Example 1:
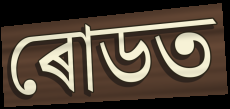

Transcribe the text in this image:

ৰোডত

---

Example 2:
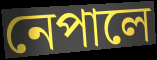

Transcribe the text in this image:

নেপালে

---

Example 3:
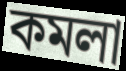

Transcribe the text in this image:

কমলা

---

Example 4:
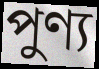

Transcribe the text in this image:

পুণ্য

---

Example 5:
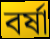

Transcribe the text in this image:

বৰ্ষা